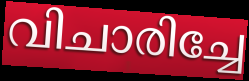
വിചാരിച്ചേ